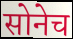
सोनेच